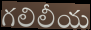
గలిలీయ